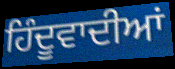
ਹਿੰਦੂਵਾਦੀਆਂ